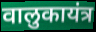
वालुकायंत्र